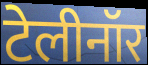
टेलीनॉर